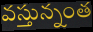
వస్తున్నంత